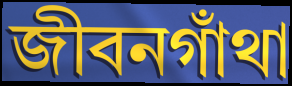
জীবনগাঁথা